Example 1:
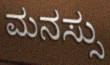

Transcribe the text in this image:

ಮನಸ್ಸು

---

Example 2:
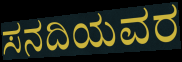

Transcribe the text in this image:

ಸನದಿಯವರ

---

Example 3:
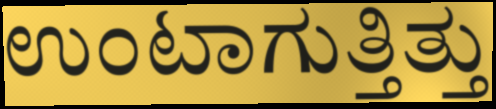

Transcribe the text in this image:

ಉಂಟಾಗುತ್ತಿತ್ತು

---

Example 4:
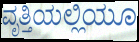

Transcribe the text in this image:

ವೃತ್ತಿಯಲ್ಲಿಯೂ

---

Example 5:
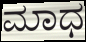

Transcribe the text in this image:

ಮಾಧ